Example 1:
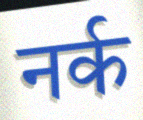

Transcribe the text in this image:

नर्क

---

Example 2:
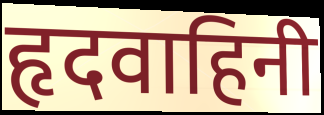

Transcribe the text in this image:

हृदवाहिनी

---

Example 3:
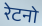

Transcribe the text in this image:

रेटनो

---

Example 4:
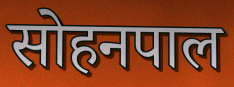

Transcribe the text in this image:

सोहनपाल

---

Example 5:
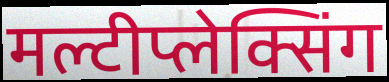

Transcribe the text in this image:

मल्टीप्लेक्सिंग